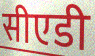
सीएडी